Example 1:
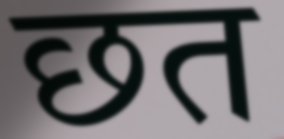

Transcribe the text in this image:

छत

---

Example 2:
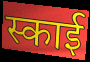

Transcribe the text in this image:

स्काई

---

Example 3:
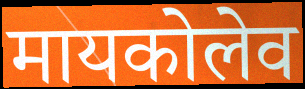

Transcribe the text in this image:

मायकोलेव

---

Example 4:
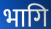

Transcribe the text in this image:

भागि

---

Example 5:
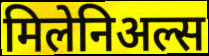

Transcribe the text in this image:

मिलेनिअल्स